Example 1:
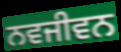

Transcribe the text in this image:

ਨਵਜੀਵਨ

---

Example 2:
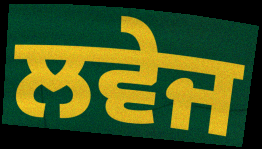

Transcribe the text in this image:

ਲਵੇਜ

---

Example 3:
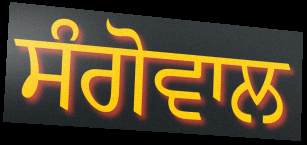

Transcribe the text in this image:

ਸੰਗੋਵਾਲ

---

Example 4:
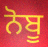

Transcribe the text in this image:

ਨੋਬੂ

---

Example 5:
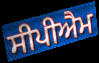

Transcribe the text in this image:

ਸੀਪੀਐਮ